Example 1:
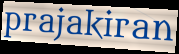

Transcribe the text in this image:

prajakiran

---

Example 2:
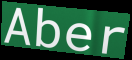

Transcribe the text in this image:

Aber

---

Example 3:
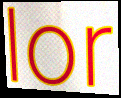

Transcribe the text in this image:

lor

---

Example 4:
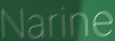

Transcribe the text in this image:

Narine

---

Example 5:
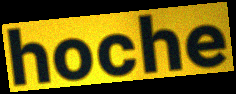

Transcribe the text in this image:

hoche